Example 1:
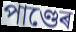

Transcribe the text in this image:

পাণ্ডেৰ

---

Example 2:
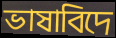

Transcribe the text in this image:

ভাষাবিদে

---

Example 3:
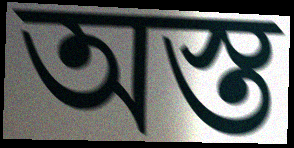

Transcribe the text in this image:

অস্ত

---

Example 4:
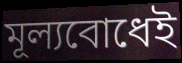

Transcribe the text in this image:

মূল্যবোধেই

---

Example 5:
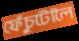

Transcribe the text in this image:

ফেঁচুটোলৈ